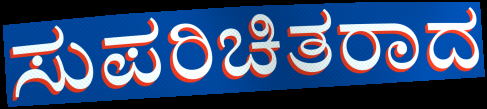
ಸುಪರಿಚಿತರಾದ